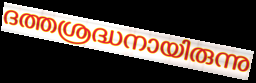
ദത്തശ്രദ്ധനായിരുന്നു